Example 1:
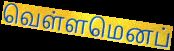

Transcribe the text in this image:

வெள்ளமெனப்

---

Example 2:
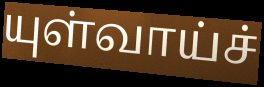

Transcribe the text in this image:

யுள்வாய்ச்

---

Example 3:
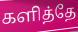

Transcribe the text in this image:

களித்தே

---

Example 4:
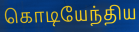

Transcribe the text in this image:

கொடியேந்திய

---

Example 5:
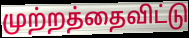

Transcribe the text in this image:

முற்றத்தைவிட்டு